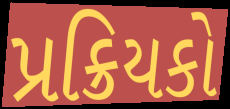
પ્રક્રિયકો